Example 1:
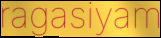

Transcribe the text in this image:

ragasiyam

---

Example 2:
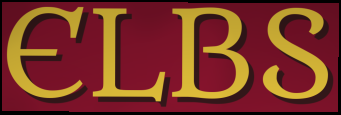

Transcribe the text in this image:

ELBS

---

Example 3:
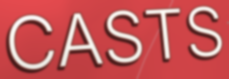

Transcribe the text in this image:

CASTS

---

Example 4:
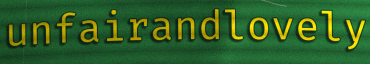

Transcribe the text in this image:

unfairandlovely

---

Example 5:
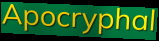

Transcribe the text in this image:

Apocryphal